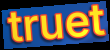
truet